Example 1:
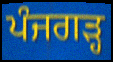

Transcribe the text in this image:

ਪੰਜਗੜ੍ਹ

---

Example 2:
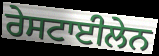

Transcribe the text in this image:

ਰੇਸਟਾਈਲੇਨ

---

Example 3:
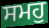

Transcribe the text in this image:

ਸਮਹੁ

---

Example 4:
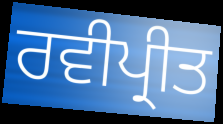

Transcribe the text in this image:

ਰਵੀਪ੍ਰੀਤ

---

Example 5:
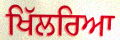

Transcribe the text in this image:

ਖਿੱਲਰਿਆ